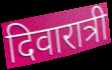
दिवारात्री